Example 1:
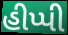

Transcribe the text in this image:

હીપ્પી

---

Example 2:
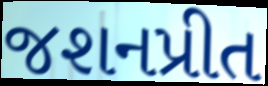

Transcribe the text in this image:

જશનપ્રીત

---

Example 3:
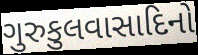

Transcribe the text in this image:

ગુરુકુલવાસાદિનો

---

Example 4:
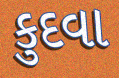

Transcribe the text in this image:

કુદવા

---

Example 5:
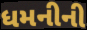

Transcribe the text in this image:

ધમનીની